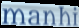
manhi